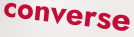
converse